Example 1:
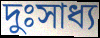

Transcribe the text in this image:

দুঃসাধ্য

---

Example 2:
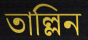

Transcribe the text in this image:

তাল্লিন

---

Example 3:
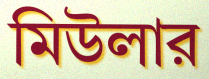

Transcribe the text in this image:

মিউলার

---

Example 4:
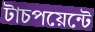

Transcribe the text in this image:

টাচপয়েন্টে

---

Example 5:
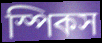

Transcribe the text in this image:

স্পিকস